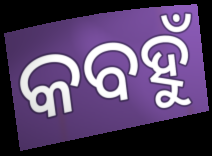
କବହୁଁ